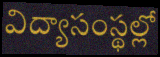
విద్యాసంస్థల్లో